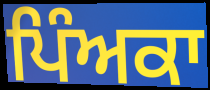
ਪਿੰਅਕਾ